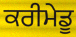
ਕਰੀਮੇਡੂ